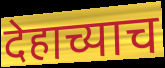
देहाच्याच